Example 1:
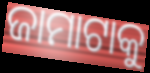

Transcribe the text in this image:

ଜାମାଟାକୁ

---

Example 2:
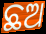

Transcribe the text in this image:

ଛଅ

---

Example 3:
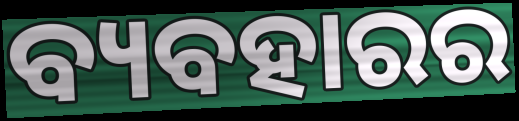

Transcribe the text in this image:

ବ୍ୟବହାରର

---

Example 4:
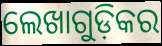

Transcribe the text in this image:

ଲେଖାଗୁଡ଼ିକର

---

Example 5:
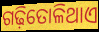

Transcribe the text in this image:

ଗଢ଼ିତୋଳିଥାଏ